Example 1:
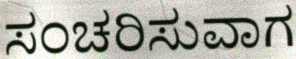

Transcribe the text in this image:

ಸಂಚರಿಸುವಾಗ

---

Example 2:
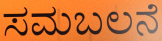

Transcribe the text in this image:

ಸಮಬಲನೆ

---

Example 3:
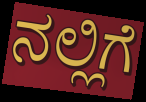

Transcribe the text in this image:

ನಲ್ಲಿಗೆ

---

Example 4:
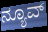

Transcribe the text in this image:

ನ್ಯೂವ್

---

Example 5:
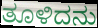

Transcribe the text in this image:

ತೂಳಿದನು